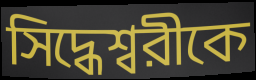
সিদ্ধেশ্বরীকে